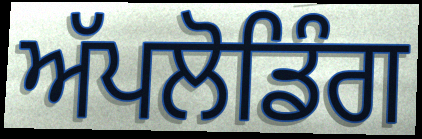
ਅੱਪਲੋਡਿੰਗ